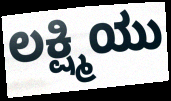
ಲಕ್ಷ್ಮಿಯು